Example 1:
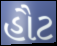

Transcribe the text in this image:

હૌટ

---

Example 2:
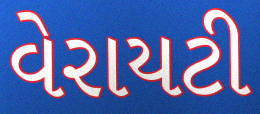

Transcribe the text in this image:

વેરાયટી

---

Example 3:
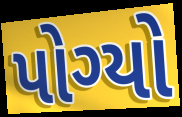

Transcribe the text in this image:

પોગ્યો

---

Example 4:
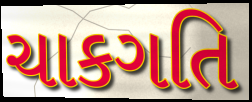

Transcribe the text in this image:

ચાકગતિ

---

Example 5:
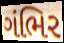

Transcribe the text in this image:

ગંભિર